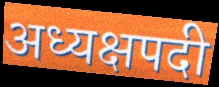
अध्यक्षपदी